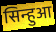
सिन्हुआ